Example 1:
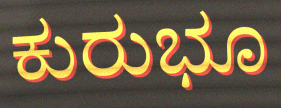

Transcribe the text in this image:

ಕುರುಭೂ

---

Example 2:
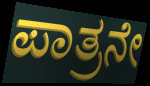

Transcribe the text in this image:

ಪಾತ್ರನೇ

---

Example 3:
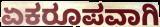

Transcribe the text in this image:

ಏಕರೂಪವಾಗಿ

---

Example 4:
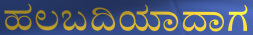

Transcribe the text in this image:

ಹಲಬದಿಯಾದಾಗ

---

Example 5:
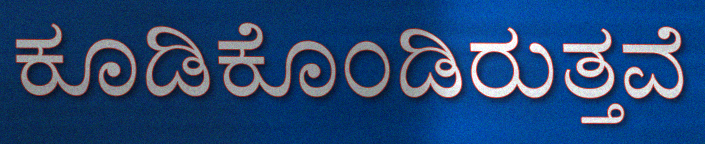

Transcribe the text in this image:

ಕೂಡಿಕೊಂಡಿರುತ್ತವೆ